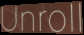
Unroll